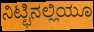
ನಿಟ್ಟಿನಲ್ಲಿಯೂ